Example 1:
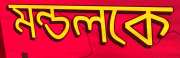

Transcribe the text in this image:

মন্ডলকে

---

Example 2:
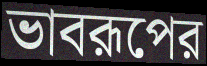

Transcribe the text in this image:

ভাবরূপের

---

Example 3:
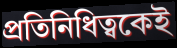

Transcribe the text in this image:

প্রতিনিধিত্বকেই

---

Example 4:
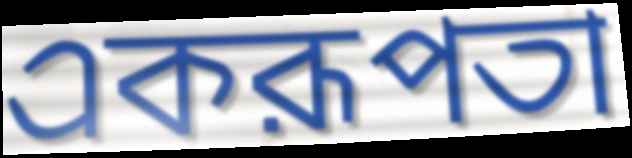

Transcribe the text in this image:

একরূপতা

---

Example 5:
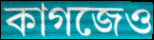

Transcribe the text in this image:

কাগজেও